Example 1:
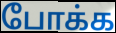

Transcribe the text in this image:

போக்க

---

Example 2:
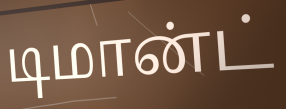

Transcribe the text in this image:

டிமான்ட்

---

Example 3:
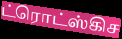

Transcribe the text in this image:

ட்ரொட்ஸ்கிச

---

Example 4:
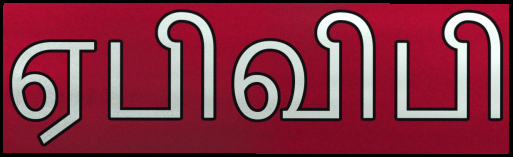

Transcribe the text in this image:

ஏபிவிபி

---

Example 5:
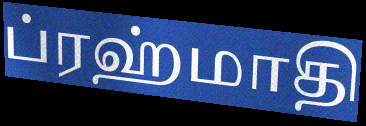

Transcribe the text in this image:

ப்ரஹ்மாதி